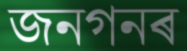
জনগনৰ